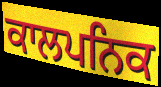
ਕਾਲਪਨਿਕ